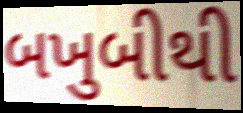
બખુબીથી